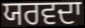
ਯਰਵਦਾ